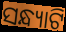
ସନ୍ଧ୍ୟାଟି